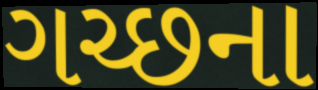
ગચ્છના